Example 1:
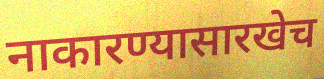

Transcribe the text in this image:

नाकारण्यासारखेच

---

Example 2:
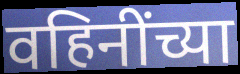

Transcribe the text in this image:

वहिनींच्या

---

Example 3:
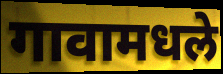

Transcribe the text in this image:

गावामधले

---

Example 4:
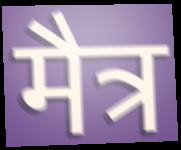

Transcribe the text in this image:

मैत्र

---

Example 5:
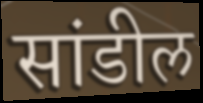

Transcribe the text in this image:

सांडील